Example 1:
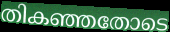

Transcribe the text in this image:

തികഞ്ഞതോടെ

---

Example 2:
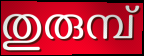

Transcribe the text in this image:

തുരുമ്പ്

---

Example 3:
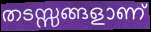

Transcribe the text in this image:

തടസ്സങ്ങളാണ്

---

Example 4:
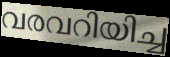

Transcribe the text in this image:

വരവറിയിച്ച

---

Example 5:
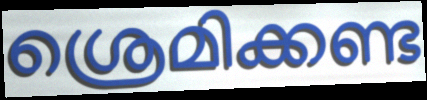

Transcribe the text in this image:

ശ്രെമിക്കണ്ട